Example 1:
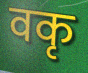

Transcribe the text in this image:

वकृ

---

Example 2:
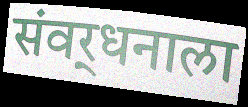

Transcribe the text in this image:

संवर्धनाला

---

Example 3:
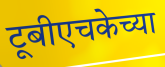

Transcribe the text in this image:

टूबीएचकेच्या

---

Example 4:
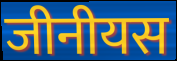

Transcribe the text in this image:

जीनीयस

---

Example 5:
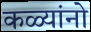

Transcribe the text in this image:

कळ्यांनो